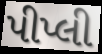
પીપ્લી